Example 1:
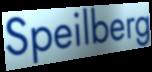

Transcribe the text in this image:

Speilberg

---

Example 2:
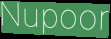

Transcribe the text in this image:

Nupoor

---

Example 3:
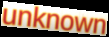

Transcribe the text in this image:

unknown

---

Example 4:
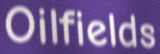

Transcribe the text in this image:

Oilfields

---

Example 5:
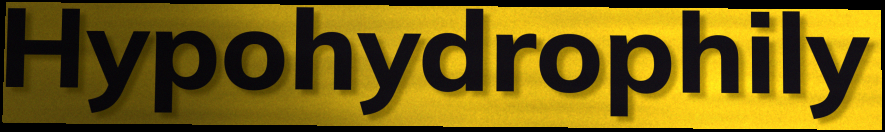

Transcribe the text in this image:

Hypohydrophily